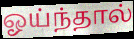
ஓய்ந்தால்